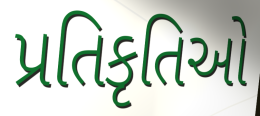
પ્રતિકૃતિઓ